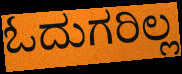
ಓದುಗರಿಲ್ಲ